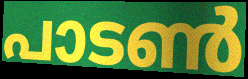
പാടൺ